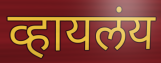
व्हायलंय